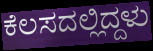
ಕೆಲಸದಲ್ಲಿದ್ದಳು